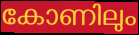
കോണിലും